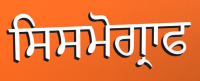
ਸਿਸਮੋਗ੍ਰਾਫ